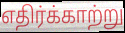
எதிர்க்காற்று